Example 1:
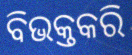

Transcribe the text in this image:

ବିଭକ୍ତକରି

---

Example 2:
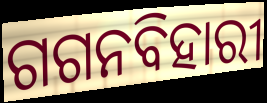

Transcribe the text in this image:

ଗଗନବିହାରୀ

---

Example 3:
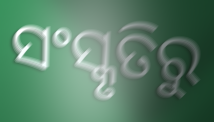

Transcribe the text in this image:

ସଂସ୍କୃତିରୁ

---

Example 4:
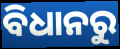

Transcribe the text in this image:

ବିଧାନରୁ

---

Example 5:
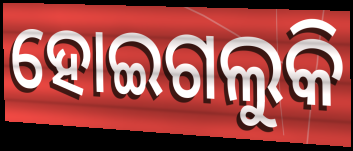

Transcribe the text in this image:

ହୋଇଗଲୁକି